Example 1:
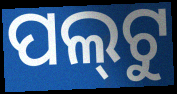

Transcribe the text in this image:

ପଲ୍‍ଟୁ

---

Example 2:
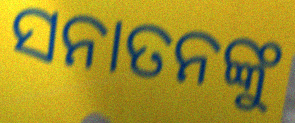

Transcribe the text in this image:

ସନାତନଙ୍କୁ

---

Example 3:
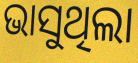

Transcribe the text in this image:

ଭାସୁଥିଲା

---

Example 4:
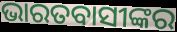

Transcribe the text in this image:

ଭାରତବାସୀଙ୍କର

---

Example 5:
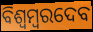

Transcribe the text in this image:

ବିଶ୍ୱମ୍ବରଦେବ